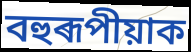
বহুৰূপীয়াক